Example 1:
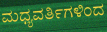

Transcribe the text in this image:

ಮಧ್ಯವರ್ತಿಗಳಿಂದ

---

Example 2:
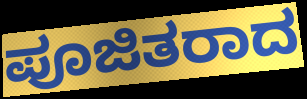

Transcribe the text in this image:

ಪೂಜಿತರಾದ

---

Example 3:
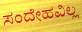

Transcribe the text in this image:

ಸಂದೇಹವಿಲ್ಲ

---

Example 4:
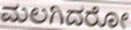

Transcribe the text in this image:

ಮಲಗಿದರೋ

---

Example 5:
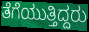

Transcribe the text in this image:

ತೆಗೆಯುತ್ತಿದ್ದರು